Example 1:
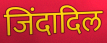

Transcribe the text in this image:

जिंदादिल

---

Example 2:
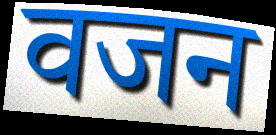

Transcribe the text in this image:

वजन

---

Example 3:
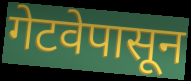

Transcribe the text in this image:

गेटवेपासून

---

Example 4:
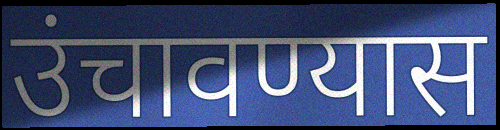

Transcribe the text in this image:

उंचावण्यास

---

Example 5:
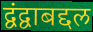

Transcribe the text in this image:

द्वंद्वाबद्दल